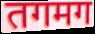
तगमग